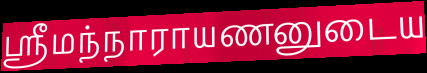
ஸ்ரீமந்நாராயணனுடைய